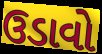
ઉડાવો